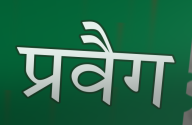
प्रवैग